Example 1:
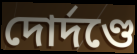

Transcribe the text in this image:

দোর্দণ্ডে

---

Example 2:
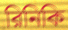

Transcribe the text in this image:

রিনিকি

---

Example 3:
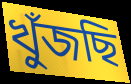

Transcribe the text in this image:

খুঁজছি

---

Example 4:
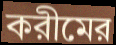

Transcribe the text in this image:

করীমের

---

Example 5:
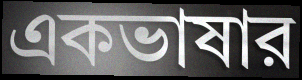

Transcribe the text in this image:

একভাষার